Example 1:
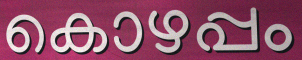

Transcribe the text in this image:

കൊഴപ്പം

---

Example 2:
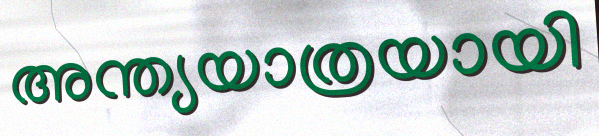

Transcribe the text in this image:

അന്ത്യയാത്രയായി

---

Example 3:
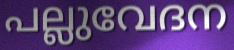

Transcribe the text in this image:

പല്ലുവേദന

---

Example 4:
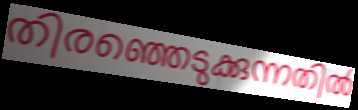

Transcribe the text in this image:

തിരഞ്ഞെടുക്കുന്നതിൽ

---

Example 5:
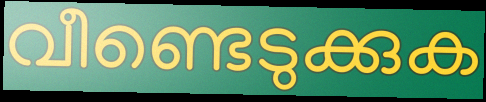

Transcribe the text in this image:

വീണ്ടെടുക്കുക